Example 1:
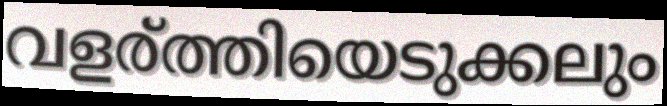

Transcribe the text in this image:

വളര്ത്തിയെടുക്കലും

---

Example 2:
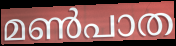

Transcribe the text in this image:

മൺപാത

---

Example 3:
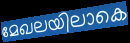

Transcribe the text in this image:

മേഖലയിലാകെ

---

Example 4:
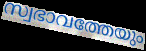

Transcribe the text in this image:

സ്വഭാവത്തേയും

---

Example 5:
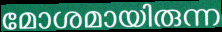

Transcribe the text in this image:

മോശമായിരുന്ന